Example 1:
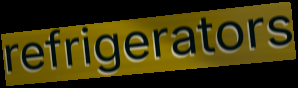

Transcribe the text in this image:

refrigerators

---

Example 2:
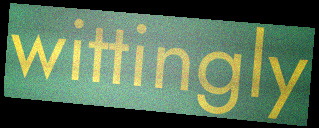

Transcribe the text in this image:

wittingly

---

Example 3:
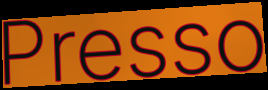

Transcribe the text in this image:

Presso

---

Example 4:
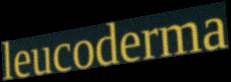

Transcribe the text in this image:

leucoderma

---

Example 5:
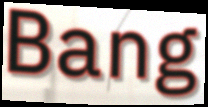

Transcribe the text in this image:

Bang